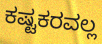
ಕಷ್ಟಕರವಲ್ಲ